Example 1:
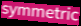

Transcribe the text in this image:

symmetric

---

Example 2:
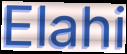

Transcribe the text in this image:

Elahi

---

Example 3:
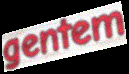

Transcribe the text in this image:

gentem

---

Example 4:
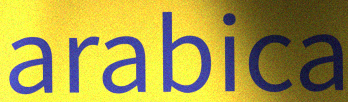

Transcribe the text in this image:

arabica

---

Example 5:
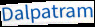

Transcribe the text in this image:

Dalpatram